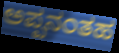
ಅಪ್ಪನಂತಹ